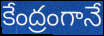
కేంద్రంగానే